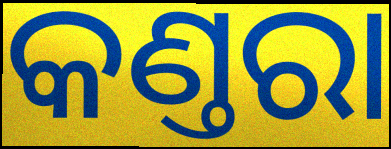
କଣ୍ତରା